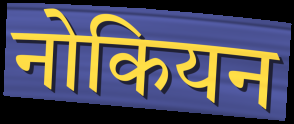
नोकियन